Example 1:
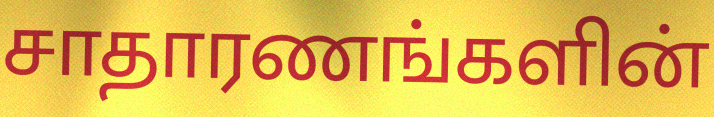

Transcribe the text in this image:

சாதாரணங்களின்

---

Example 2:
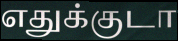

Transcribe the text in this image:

எதுக்குடா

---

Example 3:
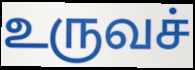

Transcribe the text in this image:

உருவச்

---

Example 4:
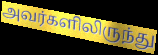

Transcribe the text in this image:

அவர்களிலிருந்து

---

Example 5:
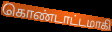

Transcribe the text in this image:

கொண்டாட்டமாகி